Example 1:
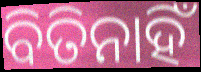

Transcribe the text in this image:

ବିତିନାହିଁ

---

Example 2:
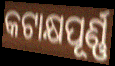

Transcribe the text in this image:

କଟାକ୍ଷପୂର୍ଣ୍ଣ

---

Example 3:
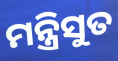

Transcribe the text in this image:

ମନ୍ତ୍ରିସୁତ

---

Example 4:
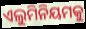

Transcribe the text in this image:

ଏଲୁମିନିୟମକୁ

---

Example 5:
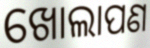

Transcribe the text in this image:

ଖୋଲାପଣ